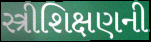
સ્ત્રીશિક્ષણની